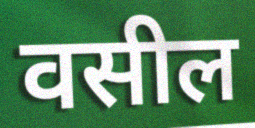
वसील